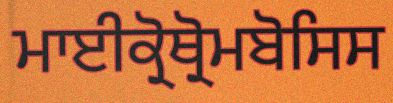
ਮਾਈਕ੍ਰੋਥ੍ਰੋਮਬੋਸਿਸ